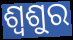
ଶ୍ଵଶୁର